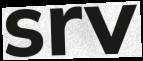
srv